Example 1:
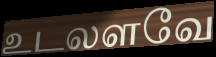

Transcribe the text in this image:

உடலளவே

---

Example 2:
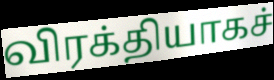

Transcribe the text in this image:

விரக்தியாகச்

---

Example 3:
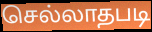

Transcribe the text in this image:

செல்லாதபடி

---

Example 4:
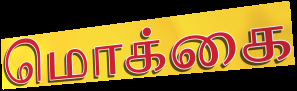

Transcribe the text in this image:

மொக்கை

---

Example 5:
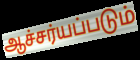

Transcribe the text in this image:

ஆச்சர்யப்படும்